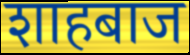
शाहबाज